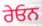
ਰੇਓਨ